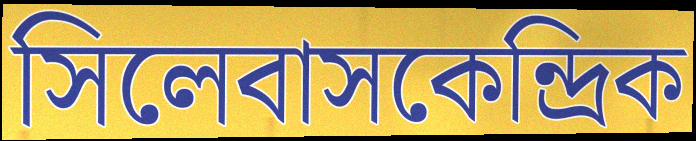
সিলেবাসকেন্দ্রিক